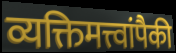
व्यक्तिमत्त्वांपैकी